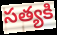
సత్యకి